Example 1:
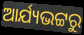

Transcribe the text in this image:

ଆର୍ଯ୍ୟଭଟ୍ଟରୁ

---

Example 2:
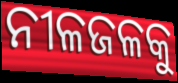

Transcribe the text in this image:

ନୀଳଜଳକୁ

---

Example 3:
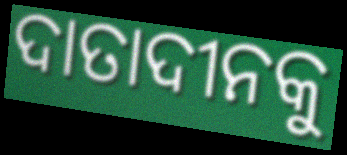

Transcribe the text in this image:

ଦାତାଦୀନକୁ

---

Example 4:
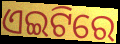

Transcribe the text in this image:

ଏଇଟିରେ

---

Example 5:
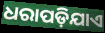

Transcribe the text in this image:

ଧରାପଡ଼ିଯାଏ